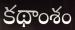
కథాంశం